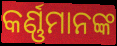
କର୍ଣ୍ଣମାନଙ୍କ